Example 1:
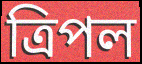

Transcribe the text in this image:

ত্রিপল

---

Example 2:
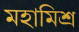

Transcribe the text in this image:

মহামিশ্র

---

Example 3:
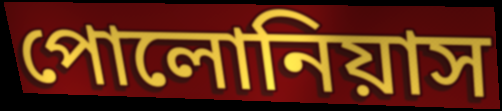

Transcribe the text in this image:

পোলোনিয়াস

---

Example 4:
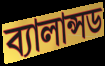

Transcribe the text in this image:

ব্যালান্সড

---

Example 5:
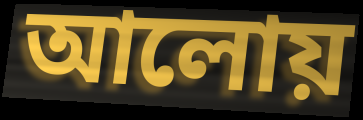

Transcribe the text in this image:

আলোয়